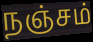
நஞ்சம்